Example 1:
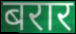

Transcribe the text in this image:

बरार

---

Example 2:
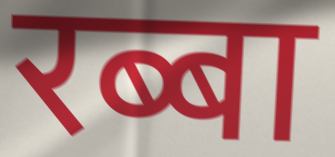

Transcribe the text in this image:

रब्बा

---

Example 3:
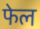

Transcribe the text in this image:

फेल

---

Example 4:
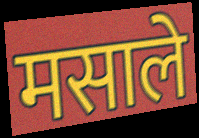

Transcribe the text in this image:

मसाले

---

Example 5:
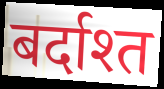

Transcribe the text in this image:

बर्दाश्त